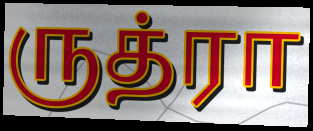
ருத்ரா